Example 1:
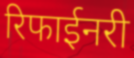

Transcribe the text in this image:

रिफाईनरी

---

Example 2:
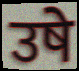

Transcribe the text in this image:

उषे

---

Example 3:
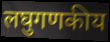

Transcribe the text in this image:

लघुगणकीय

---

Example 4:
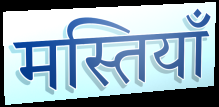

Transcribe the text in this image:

मस्तियाँ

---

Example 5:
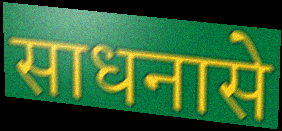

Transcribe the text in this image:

साधनासे